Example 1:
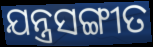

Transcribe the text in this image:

ଯନ୍ତ୍ରସଙ୍ଗୀତ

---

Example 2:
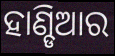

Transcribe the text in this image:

ହାଣ୍ଡିଆର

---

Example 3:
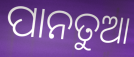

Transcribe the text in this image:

ପାନତୁଆ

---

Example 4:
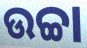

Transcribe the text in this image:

ଉଚ୍ଚା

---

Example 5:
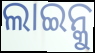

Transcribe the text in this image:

ଲାଇନ୍କୁ